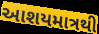
આશયમાત્રથી